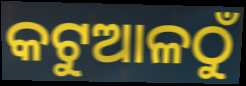
କଟୁଆଳଠୁଁ